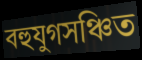
বহুযুগসঞ্চিত